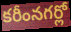
కరీంనగర్లో